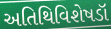
અતિથિવિશેષડૉ